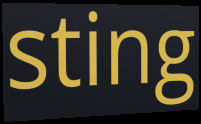
sting